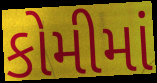
કોમીમાં